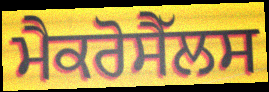
ਮੈਕਰੋਸੈੱਲਸ